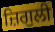
ਜ਼ਿਗੁਲੀ